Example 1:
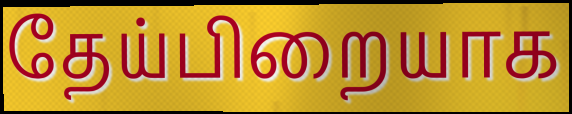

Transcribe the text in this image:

தேய்பிறையாக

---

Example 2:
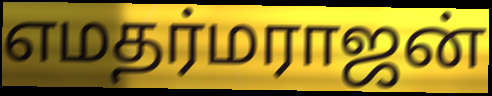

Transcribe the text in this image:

எமதர்மராஜன்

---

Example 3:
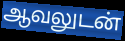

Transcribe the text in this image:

ஆவலுடன்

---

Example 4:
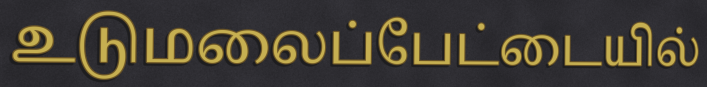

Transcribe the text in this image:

உடுமலைப்பேட்டையில்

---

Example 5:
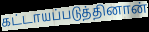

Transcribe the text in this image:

கட்டாயப்படுத்தினான்